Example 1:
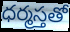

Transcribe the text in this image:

ధర్మస్తతో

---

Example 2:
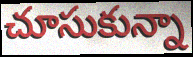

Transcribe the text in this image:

చూసుకున్నా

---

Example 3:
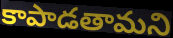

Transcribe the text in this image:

కాపాడతామని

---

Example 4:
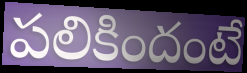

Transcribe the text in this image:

పలికిందంటే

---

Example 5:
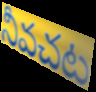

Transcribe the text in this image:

నీవచట